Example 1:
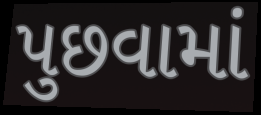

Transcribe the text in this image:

પુછવામાં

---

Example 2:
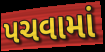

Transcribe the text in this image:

પચવામાં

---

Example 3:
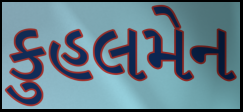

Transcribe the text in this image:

કુહલમેન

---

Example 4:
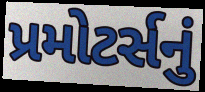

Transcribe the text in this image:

પ્રમોટર્સનું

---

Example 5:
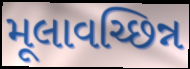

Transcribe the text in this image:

મૂલાવચ્છિન્ન